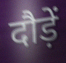
दौड़ें